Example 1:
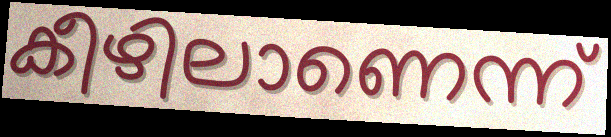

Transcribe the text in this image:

കീഴിലാണെന്ന്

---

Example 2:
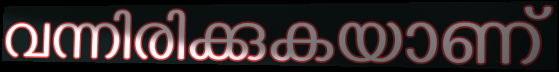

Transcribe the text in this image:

വന്നിരിക്കുകയാണ്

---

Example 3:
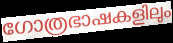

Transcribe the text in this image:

ഗോത്രഭാഷകളിലും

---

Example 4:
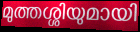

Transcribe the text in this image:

മുത്തശ്ശിയുമായി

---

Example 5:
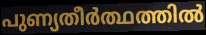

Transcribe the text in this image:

പുണ്യതീർത്ഥത്തിൽ